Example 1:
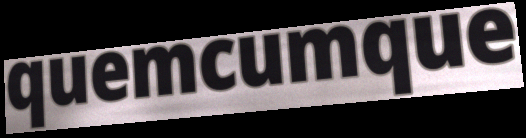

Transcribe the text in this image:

quemcumque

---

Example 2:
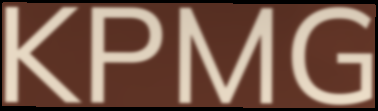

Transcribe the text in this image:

KPMG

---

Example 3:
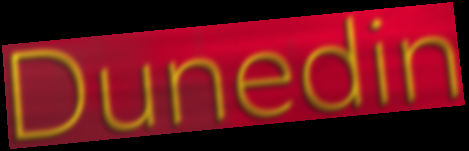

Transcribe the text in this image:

Dunedin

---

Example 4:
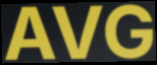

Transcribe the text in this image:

AVG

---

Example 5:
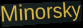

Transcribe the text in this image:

Minorsky